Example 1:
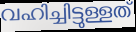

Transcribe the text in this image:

വഹിച്ചിട്ടുള്ളത്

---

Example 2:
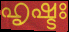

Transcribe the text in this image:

ഹൃഷ്ടഃ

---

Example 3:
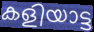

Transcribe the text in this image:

കളിയാട്ട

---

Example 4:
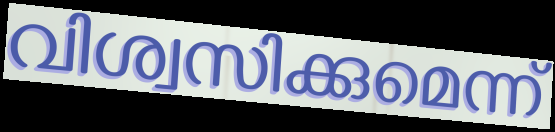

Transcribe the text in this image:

വിശ്വസിക്കുമെന്ന്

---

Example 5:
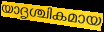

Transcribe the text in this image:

യാദൃശ്ചികമായ